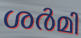
ശർമി